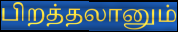
பிறத்தலானும்